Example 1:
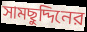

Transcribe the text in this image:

সামছুদ্দিনের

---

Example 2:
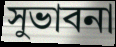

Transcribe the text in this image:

সুভাবনা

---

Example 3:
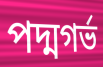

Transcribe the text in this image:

পদ্মগর্ভ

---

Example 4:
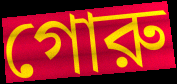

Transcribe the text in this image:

গোরু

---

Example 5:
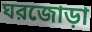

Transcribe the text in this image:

ঘরজোড়া